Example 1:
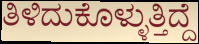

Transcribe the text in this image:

ತಿಳಿದುಕೊಳ್ಳುತ್ತಿದ್ದೆ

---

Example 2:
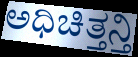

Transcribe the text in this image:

ಅಧಿಚಿತ್ತನ್ತಿ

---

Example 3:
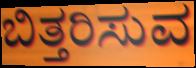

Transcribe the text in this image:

ಬಿತ್ತರಿಸುವ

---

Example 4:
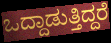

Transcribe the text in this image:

ಒದ್ದಾಡುತ್ತಿದ್ದರೆ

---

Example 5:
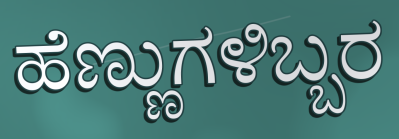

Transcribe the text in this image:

ಹೆಣ್ಣುಗಳಿಬ್ಬರ